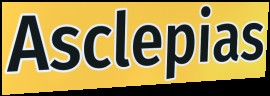
Asclepias